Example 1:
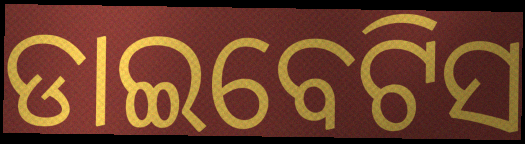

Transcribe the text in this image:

ଡାଇବେଟିସ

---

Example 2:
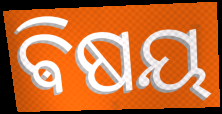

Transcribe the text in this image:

ଵିଷୟ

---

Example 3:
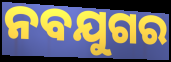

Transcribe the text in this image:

ନବଯୁଗର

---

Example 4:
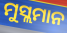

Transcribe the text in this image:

ମୁସ୍ଲମାନ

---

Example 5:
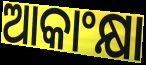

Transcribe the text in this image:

ଆକାଂକ୍ଷା